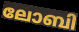
ലോബി